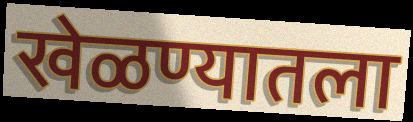
खेळण्यातला